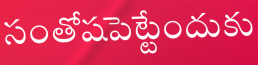
సంతోషపెట్టేందుకు